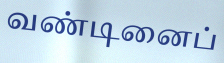
வண்டினைப்